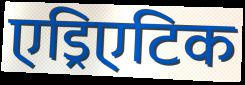
एड्रिएटिक